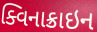
ક્વિનાક્રાઇન